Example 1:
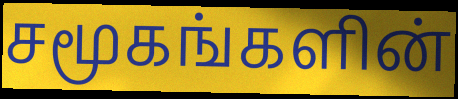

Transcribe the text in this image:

சமூகங்களின்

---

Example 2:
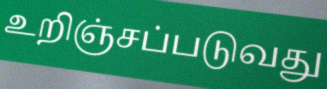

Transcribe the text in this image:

உறிஞ்சப்படுவது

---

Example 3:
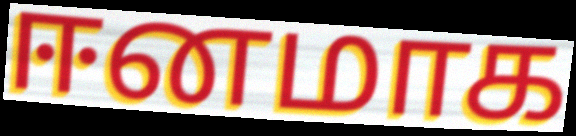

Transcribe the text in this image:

ஈனமாக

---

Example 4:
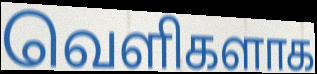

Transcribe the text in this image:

வெளிகளாக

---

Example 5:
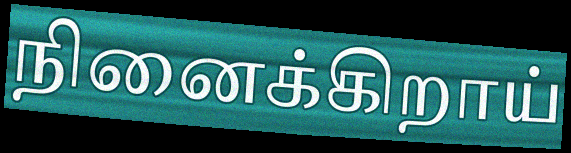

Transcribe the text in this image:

நினைக்கிறாய்